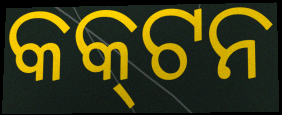
କକ୍‌ଟନ